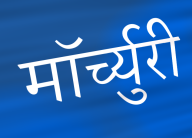
मॉर्च्युरी